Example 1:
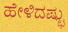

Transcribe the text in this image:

ಹೇಳಿದಷ್ಟು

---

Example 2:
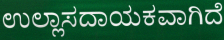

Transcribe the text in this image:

ಉಲ್ಲಾಸದಾಯಕವಾಗಿದೆ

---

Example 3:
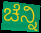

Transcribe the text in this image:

ಚೆನ್ನಿ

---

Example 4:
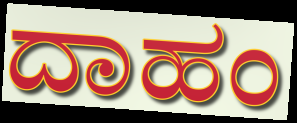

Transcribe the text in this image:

ದಾಹಂ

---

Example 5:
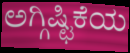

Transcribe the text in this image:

ಅಗ್ಗಿಷ್ಟಿಕೆಯ